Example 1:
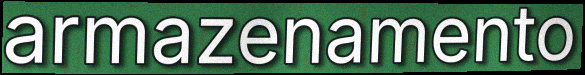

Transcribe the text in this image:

armazenamento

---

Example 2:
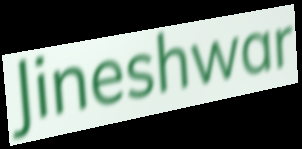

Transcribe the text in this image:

Jineshwar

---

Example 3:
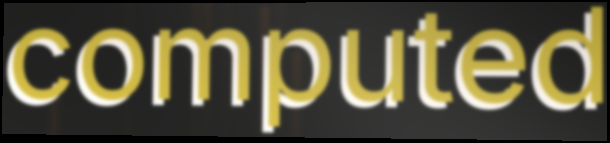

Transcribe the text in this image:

computed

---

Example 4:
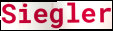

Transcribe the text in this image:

Siegler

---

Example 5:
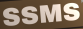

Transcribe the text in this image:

SSMS